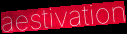
aestivation